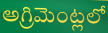
అగ్రిమెంట్లలో